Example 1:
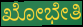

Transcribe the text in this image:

ಖೋಭೇತಿ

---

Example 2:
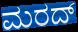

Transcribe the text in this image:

ಮರದ್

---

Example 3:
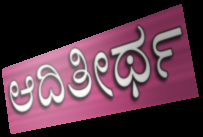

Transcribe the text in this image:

ಆದಿತೀರ್ಥ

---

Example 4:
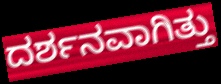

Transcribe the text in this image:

ದರ್ಶನವಾಗಿತ್ತು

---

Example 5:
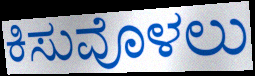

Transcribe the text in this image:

ಕಿಸುವೊಳಲು